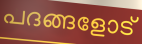
പദങ്ങളോട്